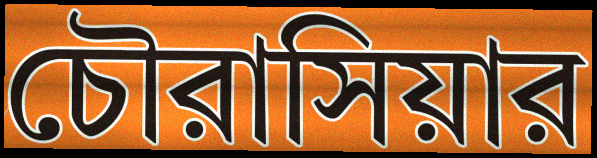
চৌরাসিয়ার